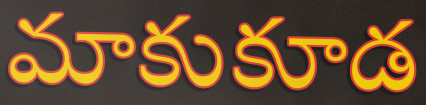
మాకుకూడ